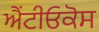
ਐਂਟੀਓਕੋਸ